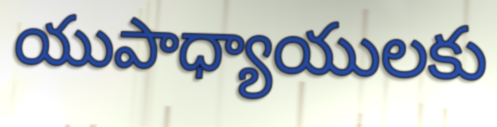
యుపాధ్యాయులకు